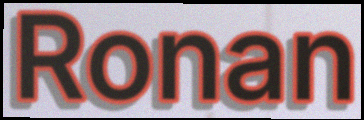
Ronan